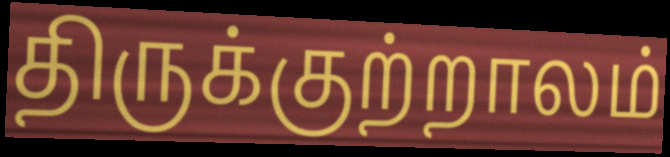
திருக்குற்றாலம்